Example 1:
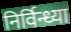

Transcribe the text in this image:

निर्विन्ध्या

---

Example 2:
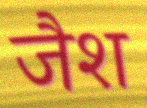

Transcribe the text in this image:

जैश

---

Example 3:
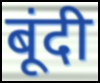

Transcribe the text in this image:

बूंदी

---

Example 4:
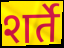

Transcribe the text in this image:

शर्ते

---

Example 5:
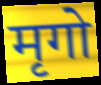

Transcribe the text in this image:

मृगो